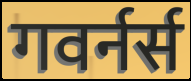
गवर्नर्स